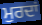
ਮੁਰਦਾਂ